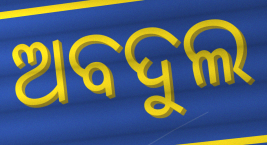
ଅବଦୁଲ